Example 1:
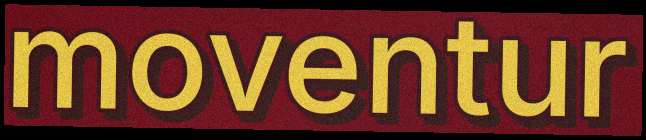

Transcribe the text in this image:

moventur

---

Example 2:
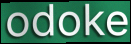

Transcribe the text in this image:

odoke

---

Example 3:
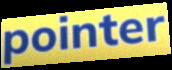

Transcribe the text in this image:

pointer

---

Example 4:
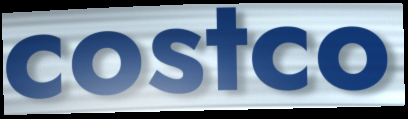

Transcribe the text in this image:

costco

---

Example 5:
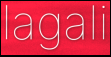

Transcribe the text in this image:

lagali